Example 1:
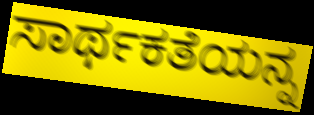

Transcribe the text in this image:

ಸಾರ್ಥಕತೆಯನ್ನ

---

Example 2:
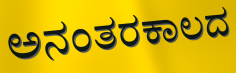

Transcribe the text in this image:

ಅನಂತರಕಾಲದ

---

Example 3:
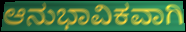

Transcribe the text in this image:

ಆನುಭಾವಿಕವಾಗಿ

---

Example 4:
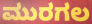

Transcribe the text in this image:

ಮುರಗಲ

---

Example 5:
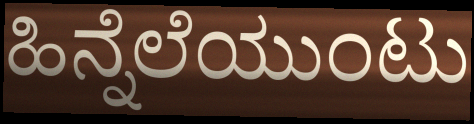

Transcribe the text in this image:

ಹಿನ್ನೆಲೆಯುಂಟು